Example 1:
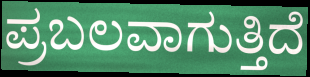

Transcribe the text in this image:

ಪ್ರಬಲವಾಗುತ್ತಿದೆ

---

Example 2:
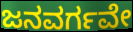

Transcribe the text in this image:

ಜನವರ್ಗವೇ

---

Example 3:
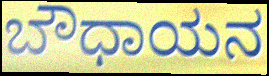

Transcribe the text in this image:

ಬೌಧಾಯನ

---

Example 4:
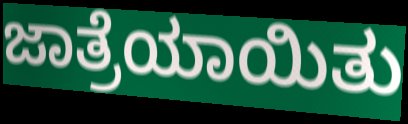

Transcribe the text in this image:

ಜಾತ್ರೆಯಾಯಿತು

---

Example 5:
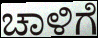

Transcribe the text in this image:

ಚಾಳಿಗೆ